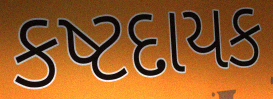
કષ્ટદાયક